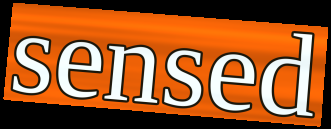
sensed